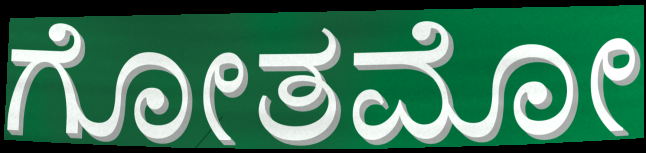
ಗೋತಮೋ